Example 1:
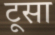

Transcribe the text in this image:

टूसा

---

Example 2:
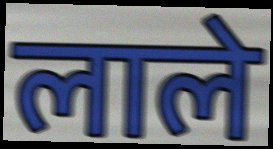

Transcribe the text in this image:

लाले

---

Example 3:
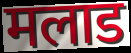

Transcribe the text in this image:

मलाड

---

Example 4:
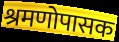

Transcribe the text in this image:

श्रमणोपासक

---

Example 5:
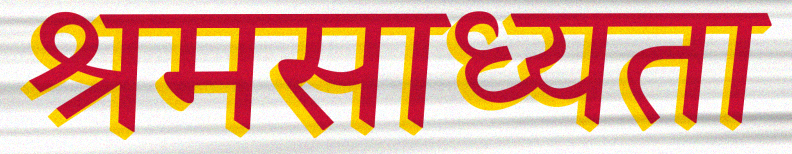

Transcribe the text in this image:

श्रमसाध्यता